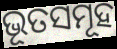
ଭୂତସମୂହ